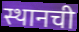
स्थानची